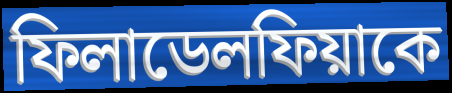
ফিলাডেলফিয়াকে